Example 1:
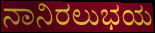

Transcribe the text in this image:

ನಾನಿರಲುಭಯ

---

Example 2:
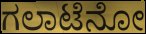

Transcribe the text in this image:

ಗಲಾಟೆನೋ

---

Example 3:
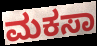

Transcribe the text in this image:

ಮಕಸಾ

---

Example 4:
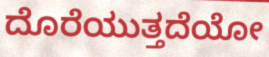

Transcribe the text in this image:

ದೊರೆಯುತ್ತದೆಯೋ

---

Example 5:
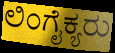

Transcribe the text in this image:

ಲಿಂಗೈಕ್ಯರು